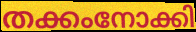
തക്കംനോക്കി